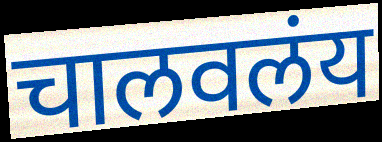
चालवलंय